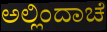
ಅಲ್ಲಿಂದಾಚೆ